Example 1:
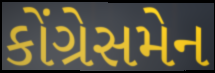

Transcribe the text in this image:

કોંગ્રેસમેન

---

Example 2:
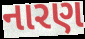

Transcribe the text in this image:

નારણ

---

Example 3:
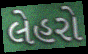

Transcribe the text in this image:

લેહરો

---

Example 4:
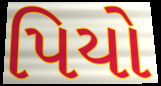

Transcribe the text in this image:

પિયો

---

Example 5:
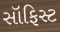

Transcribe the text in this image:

સૉફિસ્ટ